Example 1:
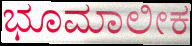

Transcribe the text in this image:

ಭೂಮಾಲೀಕ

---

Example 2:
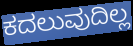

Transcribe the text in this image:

ಕದಲುವುದಿಲ್ಲ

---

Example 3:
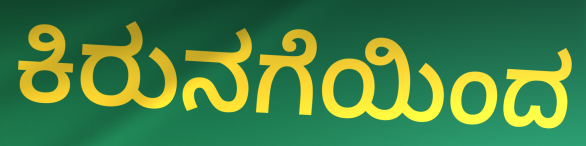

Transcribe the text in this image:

ಕಿರುನಗೆಯಿಂದ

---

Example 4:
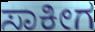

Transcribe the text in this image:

ಸಾಕೀಗ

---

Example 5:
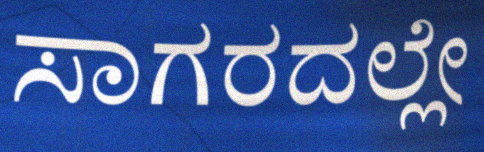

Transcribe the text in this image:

ಸಾಗರದಲ್ಲೇ